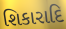
શિકારાદિ